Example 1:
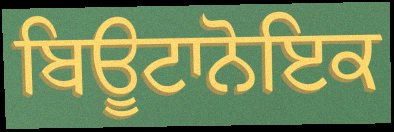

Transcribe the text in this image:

ਬਿਊਟਾਨੋਇਕ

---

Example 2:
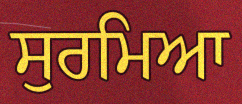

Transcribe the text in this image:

ਸੁਰਮਿਆ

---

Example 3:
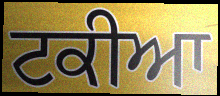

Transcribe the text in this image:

ਟਕੀਆ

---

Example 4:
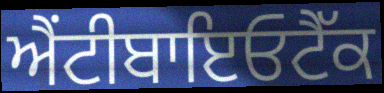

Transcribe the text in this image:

ਐਂਟੀਬਾਇਓਟੈੱਕ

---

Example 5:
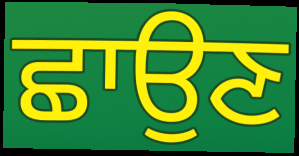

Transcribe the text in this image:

ਛਾਉਣ